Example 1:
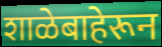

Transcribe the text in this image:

शाळेबाहेरून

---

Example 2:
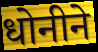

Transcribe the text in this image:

धोनीने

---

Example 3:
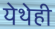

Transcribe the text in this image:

येथेही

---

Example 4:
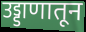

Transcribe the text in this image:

उड्डाणातून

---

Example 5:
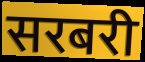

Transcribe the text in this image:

सरबरी